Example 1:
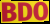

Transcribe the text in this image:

BDO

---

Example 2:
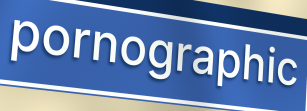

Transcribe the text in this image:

pornographic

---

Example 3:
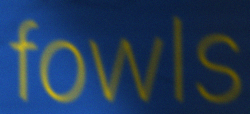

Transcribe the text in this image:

fowls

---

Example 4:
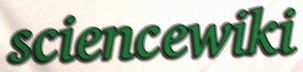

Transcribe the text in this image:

sciencewiki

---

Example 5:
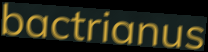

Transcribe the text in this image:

bactrianus